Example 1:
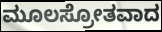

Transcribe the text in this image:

ಮೂಲಸ್ರೋತವಾದ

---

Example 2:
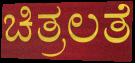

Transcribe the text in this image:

ಚಿತ್ರಲತೆ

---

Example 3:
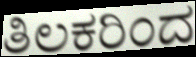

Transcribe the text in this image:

ತಿಲಕರಿಂದ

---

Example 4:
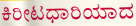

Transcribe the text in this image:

ಕಿರೀಟಧಾರಿಯಾದ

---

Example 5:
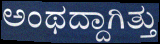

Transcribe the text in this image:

ಅಂಥದ್ದಾಗಿತ್ತು